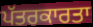
ਪੱਤਰਕਾਰਤਾ